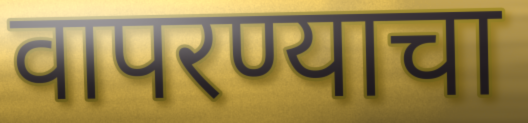
वापरण्याचा